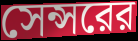
সেন্সরের